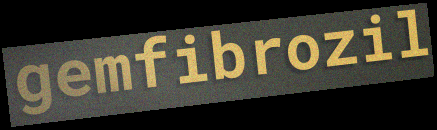
gemfibrozil